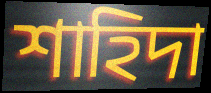
শাহিদা